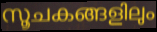
സൂചകങ്ങളിലും